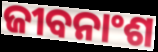
ଜୀବନାଂଶ